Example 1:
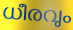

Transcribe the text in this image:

ധീരവും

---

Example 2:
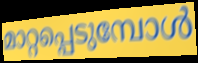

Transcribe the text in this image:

മാറ്റപ്പെടുമ്പോൾ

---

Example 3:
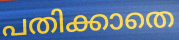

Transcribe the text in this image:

പതിക്കാതെ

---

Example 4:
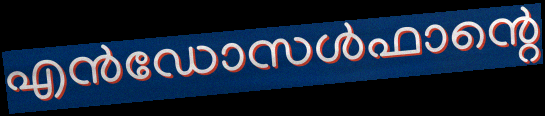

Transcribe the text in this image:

എൻഡോസൾഫാന്റെ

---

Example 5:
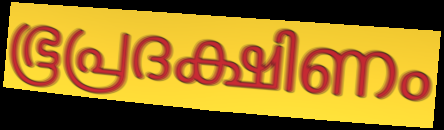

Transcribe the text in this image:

ഭൂപ്രദക്ഷിണം